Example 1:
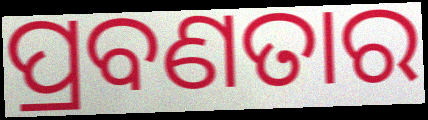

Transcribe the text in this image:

ପ୍ରବଣତାର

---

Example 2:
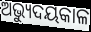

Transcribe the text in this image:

ଅଭ୍ୟୁଦୟକାଳ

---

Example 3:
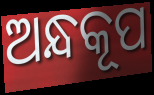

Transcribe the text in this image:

ଅନ୍ଧକୂପ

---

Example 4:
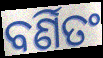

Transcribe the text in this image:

ବର୍ଣିତଂ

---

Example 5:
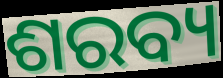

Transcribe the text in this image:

ଶରବ୍ୟ